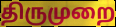
திருமுறை